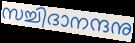
സച്ചിദാനന്ദനു